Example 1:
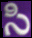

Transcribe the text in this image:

సి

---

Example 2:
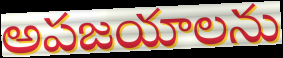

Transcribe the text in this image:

అపజయాలను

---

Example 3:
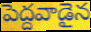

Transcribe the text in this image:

పెద్దవాడైన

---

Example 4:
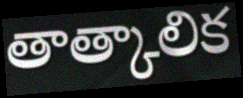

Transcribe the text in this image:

తాత్కాలిక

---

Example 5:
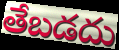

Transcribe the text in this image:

తేబడదు